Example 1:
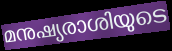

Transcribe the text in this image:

മനുഷ്യരാശിയുടെ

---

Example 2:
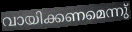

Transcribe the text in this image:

വായിക്കണമെന്നു്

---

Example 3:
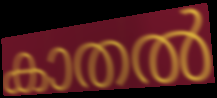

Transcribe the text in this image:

കാതൽ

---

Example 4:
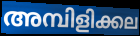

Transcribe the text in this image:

അമ്പിളിക്കല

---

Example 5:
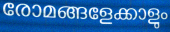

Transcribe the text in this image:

രോമങ്ങളേക്കാളും